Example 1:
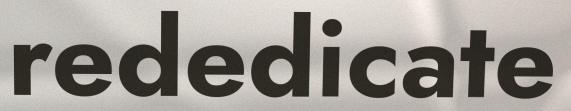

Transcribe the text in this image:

rededicate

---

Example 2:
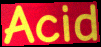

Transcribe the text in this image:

Acid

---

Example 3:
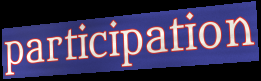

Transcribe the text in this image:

participation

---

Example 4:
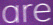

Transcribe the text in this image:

are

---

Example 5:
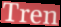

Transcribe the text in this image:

Tren